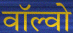
वॉल्‍वो